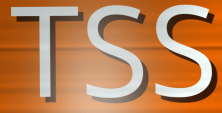
TSS